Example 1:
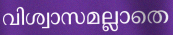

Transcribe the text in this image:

വിശ്വാസമല്ലാതെ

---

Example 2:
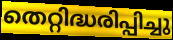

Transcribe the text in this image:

തെറ്റിദ്ധരിപ്പിച്ചു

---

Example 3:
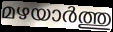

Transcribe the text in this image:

മഴയാർത്തു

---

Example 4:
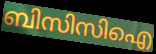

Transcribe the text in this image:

ബിസിസിഐ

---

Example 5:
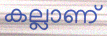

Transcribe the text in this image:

കല്ലാണ്